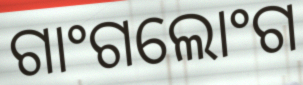
ଗାଂଗଲୋଂଗ